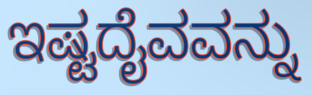
ಇಷ್ಟದೈವವನ್ನು